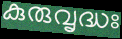
കുരുവൃദ്ധഃ